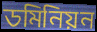
ডমিনিয়ন